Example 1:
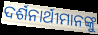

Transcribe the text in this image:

ଦର୍ଶନାର୍ଥୀମାନଙ୍କୁ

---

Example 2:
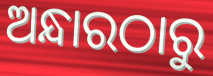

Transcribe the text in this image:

ଅନ୍ଧାରଠାରୁ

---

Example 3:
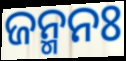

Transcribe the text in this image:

ଜନ୍ମନଃ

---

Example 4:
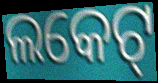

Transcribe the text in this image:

ଲକେଟ୍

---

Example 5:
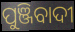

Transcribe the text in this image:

ପୁଞ୍ଜିବାଦୀ